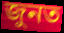
জুনত